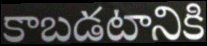
కాబడటానికి